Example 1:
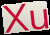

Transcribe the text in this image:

Xu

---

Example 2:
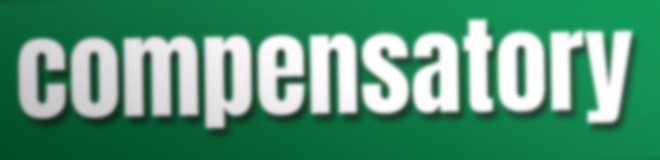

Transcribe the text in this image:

compensatory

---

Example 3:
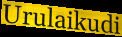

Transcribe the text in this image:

Urulaikudi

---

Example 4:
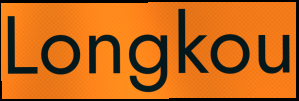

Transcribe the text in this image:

Longkou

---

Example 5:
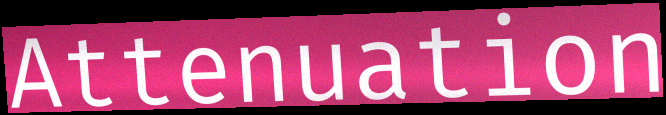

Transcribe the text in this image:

Attenuation